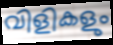
വിളികളും